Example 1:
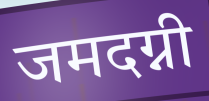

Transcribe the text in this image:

जमदग्नी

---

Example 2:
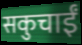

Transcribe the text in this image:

सकुचाईं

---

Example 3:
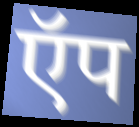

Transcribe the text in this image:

ऍप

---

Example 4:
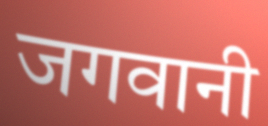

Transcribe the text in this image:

जगवानी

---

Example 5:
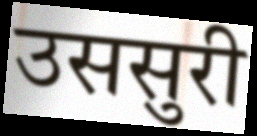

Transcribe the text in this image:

उससुरी